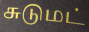
சுடுமட்